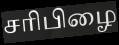
சரிபிழை